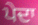
ਪੇਦਾ